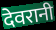
देवरानी